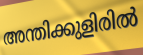
അന്തിക്കുളിരിൽ